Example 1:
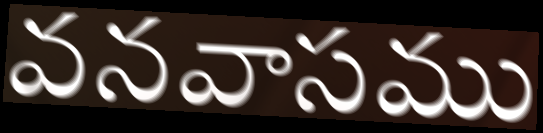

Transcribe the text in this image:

వనవాసము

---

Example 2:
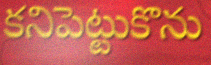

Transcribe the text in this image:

కనిపెట్టుకొను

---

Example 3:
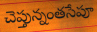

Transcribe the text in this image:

చెప్తున్నంతసేపూ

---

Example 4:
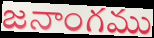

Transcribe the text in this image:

జనాంగము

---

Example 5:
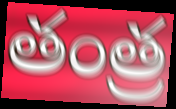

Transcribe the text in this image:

తంత్ర